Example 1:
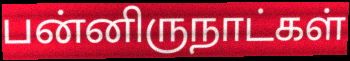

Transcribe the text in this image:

பன்னிருநாட்கள்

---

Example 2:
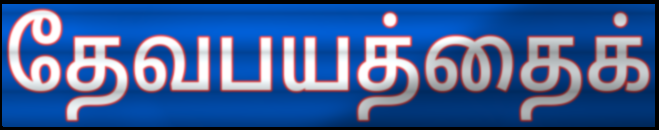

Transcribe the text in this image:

தேவபயத்தைக்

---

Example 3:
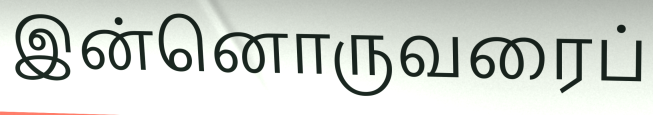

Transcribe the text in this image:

இன்னொருவரைப்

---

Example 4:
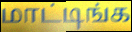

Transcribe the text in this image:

மாட்டிங்க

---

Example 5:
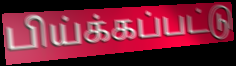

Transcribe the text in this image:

பிய்க்கப்பட்டு